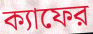
ক্যাফের